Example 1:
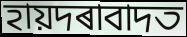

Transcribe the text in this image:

হায়দৰাবাদত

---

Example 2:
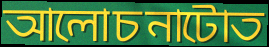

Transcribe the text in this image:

আলোচনাটোত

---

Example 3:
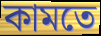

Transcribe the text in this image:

কামতে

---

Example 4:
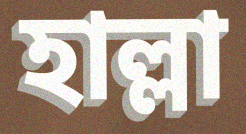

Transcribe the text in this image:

হাল্লা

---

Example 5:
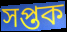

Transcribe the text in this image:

সপ্তক